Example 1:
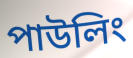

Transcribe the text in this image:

পাউলিং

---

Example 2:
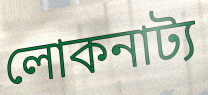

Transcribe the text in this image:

লোকনাট্য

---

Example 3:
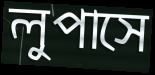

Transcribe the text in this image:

লুপাসে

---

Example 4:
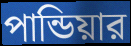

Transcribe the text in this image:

পান্ডিয়ার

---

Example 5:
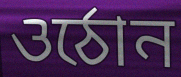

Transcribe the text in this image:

ওঠোন